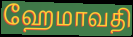
ஹேமாவதி